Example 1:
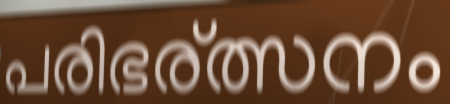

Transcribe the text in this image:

പരിഭര്ത്സനം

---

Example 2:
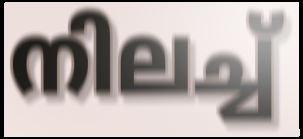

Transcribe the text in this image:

നിലച്ച്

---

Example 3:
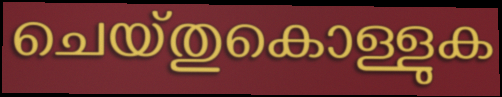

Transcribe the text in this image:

ചെയ്തുകൊള്ളുക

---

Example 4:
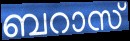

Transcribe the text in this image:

ബറാസ്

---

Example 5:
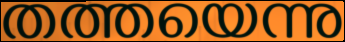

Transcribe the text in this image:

തത്തയെന്നു